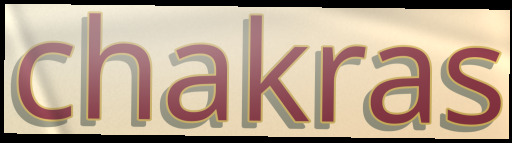
chakras